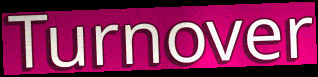
Turnover